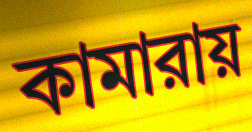
কামারায়